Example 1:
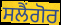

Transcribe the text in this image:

ਸਲੈਂਗੋਰ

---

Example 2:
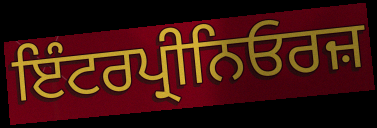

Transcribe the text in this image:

ਇੰਟਰਪ੍ਰੀਨਿਓਰਜ਼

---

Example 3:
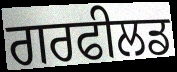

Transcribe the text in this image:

ਗਰਫੀਲਡ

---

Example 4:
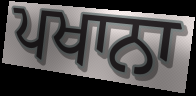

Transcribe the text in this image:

ਪਖਾਨਾ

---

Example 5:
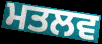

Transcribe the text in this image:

ਮਤਲਵ